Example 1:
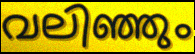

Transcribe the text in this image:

വലിഞ്ഞും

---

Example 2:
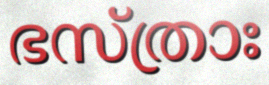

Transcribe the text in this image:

ഭസ്ത്രാഃ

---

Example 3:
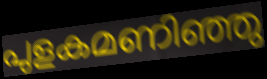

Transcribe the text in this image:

പുളകമണിഞ്ഞു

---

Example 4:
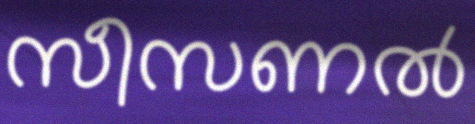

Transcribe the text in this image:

സീസണൽ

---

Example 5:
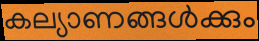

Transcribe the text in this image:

കല്യാണങ്ങൾക്കും